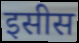
इसीस